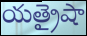
యత్రైషా